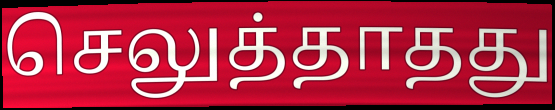
செலுத்தாதது